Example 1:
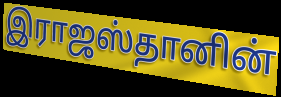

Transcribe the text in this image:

இராஜஸ்தானின்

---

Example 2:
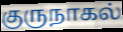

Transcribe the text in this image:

குருநாகல்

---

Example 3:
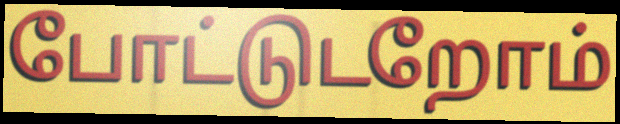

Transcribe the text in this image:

போட்டுடறோம்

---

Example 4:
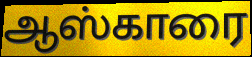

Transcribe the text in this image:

ஆஸ்காரை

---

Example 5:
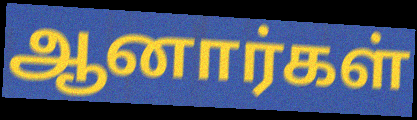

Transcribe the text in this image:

ஆனார்கள்